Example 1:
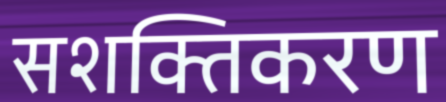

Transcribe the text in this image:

सशक्‍तिकरण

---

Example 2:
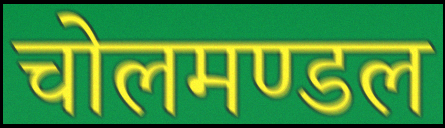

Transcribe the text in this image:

चोलमण्डल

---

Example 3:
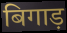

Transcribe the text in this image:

बिगाड़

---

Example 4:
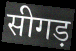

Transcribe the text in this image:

सीगड़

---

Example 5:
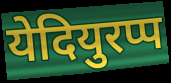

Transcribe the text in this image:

येदियुरप्प